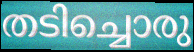
തടിച്ചൊരു